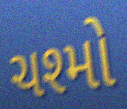
ચશ્મો